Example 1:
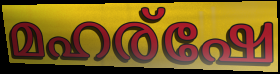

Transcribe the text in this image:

മഹര്ഷേ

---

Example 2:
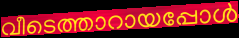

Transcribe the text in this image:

വീടെത്താറായപ്പോൾ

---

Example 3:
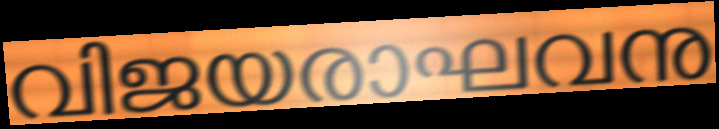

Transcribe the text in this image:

വിജയരാഘവനു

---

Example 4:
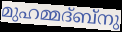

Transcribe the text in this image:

മുഹമ്മദ്ബ്നു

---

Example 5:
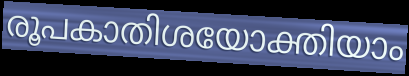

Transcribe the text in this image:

രൂപകാതിശയോക്തിയാം